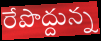
రేపొద్దున్న